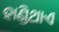
ହାଣ୍ଡିଥାଏ